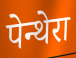
पेन्थेरा